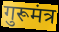
गुरूमंत्र